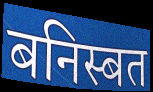
बनिस्बत